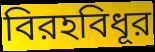
বিরহবিধূর